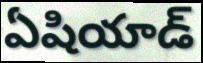
ఏషియాడ్